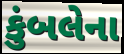
કુંબલેના